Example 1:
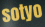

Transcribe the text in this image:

sotyo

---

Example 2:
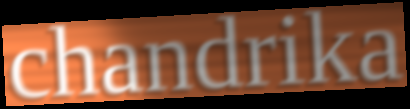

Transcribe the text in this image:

chandrika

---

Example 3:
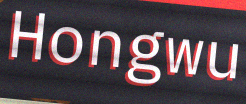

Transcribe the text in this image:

Hongwu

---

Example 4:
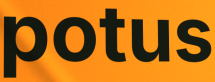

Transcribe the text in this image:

potus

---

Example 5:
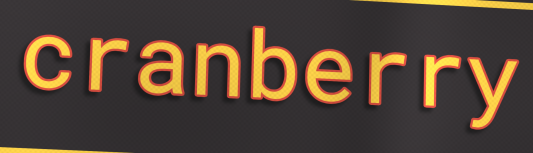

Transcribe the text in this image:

cranberry